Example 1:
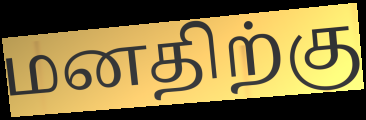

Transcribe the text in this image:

மனதிற்கு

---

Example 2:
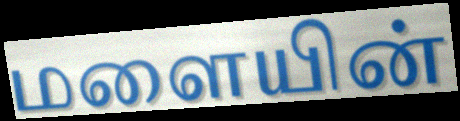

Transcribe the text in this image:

மளையின்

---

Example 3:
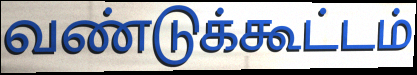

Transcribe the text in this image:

வண்டுக்கூட்டம்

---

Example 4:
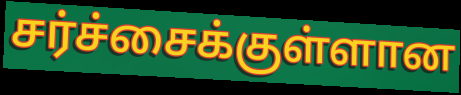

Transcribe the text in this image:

சர்ச்சைக்குள்ளான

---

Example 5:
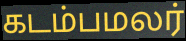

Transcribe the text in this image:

கடம்பமலர்